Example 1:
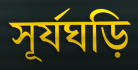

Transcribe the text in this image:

সূর্যঘড়ি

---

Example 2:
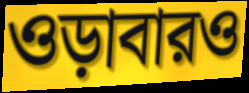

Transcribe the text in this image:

ওড়াবারও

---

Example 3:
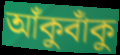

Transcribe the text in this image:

আঁকুবাঁকু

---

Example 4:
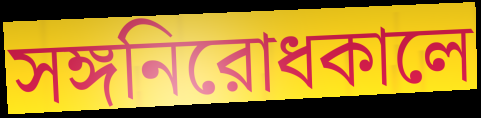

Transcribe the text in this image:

সঙ্গনিরোধকালে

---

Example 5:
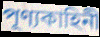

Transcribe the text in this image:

পূণ্যকাহিনী